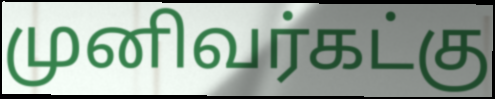
முனிவர்கட்கு